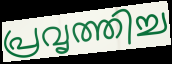
പ്രവൃത്തിച്ച